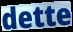
dette